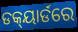
ଡକ୍‍ୟାର୍ଡରେ